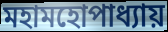
মহামহোপাধ্যায়